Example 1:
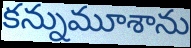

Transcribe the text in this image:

కన్నుమూశాను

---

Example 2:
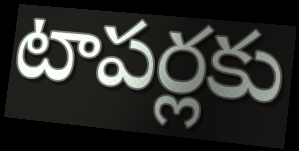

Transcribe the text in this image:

టాపర్లకు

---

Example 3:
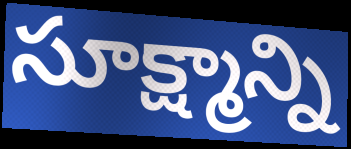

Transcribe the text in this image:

సూక్ష్మాన్ని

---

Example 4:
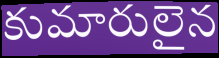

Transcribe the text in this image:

కుమారులైన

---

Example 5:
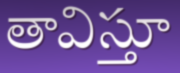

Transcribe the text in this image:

తావిస్తూ